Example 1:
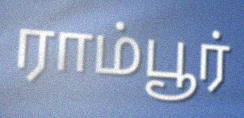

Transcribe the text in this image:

ராம்பூர்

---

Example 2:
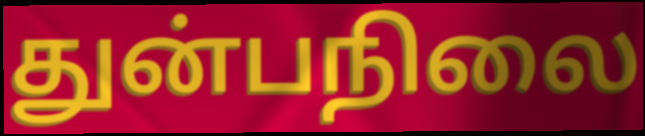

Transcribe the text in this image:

துன்பநிலை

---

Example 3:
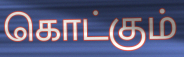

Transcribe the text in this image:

கொட்கும்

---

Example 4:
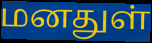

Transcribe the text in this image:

மனதுள்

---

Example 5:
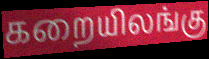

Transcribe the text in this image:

கறையிலங்கு